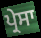
ਪ੍ਰੇਸਾ